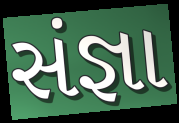
સંજ્ઞા